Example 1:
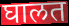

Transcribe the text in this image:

घालत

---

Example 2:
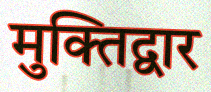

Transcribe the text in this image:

मुक्तिद्वार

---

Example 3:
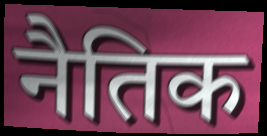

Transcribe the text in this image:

नैतिक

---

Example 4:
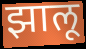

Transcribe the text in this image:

झालू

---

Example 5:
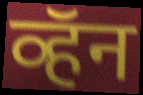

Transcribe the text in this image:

व्हॅन